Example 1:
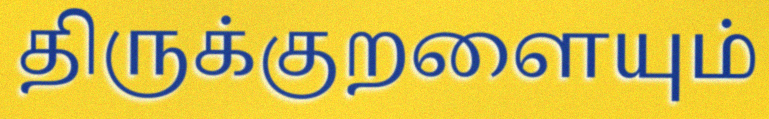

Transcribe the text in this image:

திருக்குறளையும்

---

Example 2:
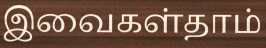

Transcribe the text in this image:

இவைகள்தாம்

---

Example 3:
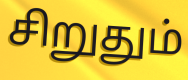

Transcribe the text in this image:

சிறுதும்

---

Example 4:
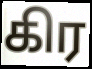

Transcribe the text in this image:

கிர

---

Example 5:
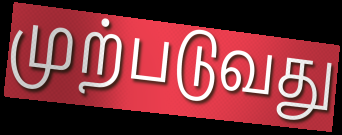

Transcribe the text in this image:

முற்படுவது